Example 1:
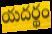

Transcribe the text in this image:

యదర్థం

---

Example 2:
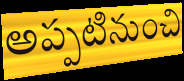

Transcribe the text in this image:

అప్పటినుంచి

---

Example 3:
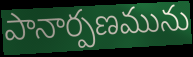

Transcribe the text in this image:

పానార్పణమును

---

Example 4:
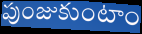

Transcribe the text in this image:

పుంజుకుంటాం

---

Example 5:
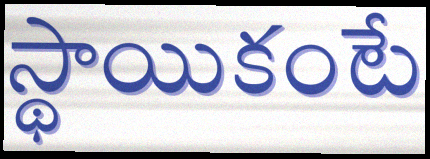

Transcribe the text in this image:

స్థాయికంటే